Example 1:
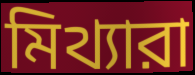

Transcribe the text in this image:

মিথ্যারা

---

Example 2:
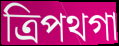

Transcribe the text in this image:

ত্রিপথগা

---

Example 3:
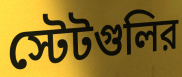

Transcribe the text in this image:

স্টেটগুলির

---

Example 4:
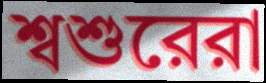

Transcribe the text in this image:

শ্বশুরেরা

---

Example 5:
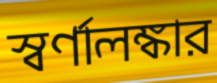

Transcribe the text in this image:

স্বর্ণালঙ্কার